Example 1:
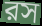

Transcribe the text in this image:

রস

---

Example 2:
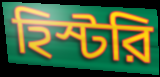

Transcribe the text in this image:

হিস্টরি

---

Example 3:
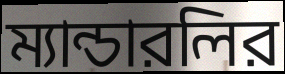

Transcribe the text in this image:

ম্যান্ডারলির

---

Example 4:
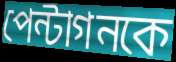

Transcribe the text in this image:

পেন্টাগনকে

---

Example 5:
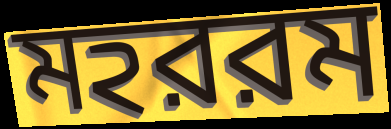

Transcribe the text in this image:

মহররম